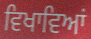
ਵਿਖਾਵਿਆਂ